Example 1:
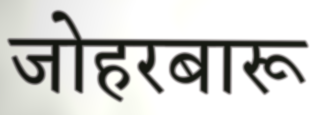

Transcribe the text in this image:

जोहरबारू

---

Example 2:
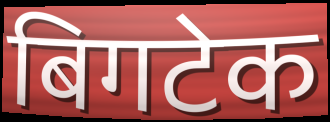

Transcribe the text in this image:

बिगटेक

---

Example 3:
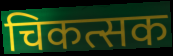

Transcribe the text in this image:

चिकत्सक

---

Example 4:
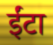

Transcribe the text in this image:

ईंटा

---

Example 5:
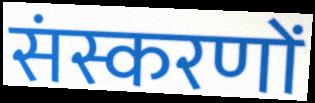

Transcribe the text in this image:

संस्करणों